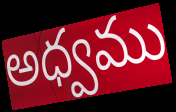
అధ్వము